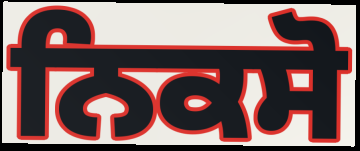
ਨਿਕਸੋ